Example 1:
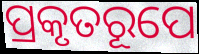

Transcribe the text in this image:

ପ୍ରକୃତରୂପେ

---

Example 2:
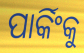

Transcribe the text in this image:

ପାର୍କିଂକୁ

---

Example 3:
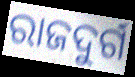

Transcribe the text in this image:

ରାଜଦୁର୍ଗ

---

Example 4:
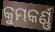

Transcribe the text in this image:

କୁମ୍ଭକର୍ଣ୍ଣ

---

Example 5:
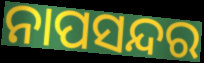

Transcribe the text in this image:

ନାପସନ୍ଦର